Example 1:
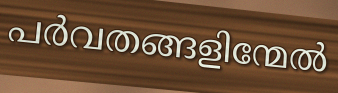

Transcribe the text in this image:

പർവതങ്ങളിന്മേൽ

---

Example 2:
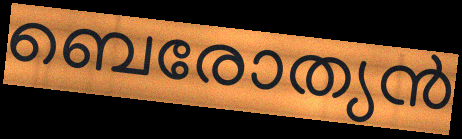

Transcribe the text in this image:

ബെരോത്യൻ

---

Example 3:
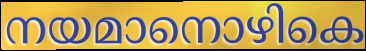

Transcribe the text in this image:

നയമാനൊഴികെ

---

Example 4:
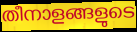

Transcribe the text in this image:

തീനാളങ്ങളുടെ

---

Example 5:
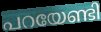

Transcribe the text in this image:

പറയേണ്ടി